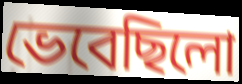
ভেবেছিলো